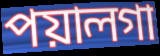
পয়ালগা